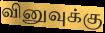
வினுவுக்கு